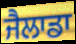
ਜੈਲਾਡਾ